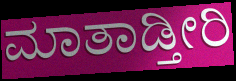
ಮಾತಾಡ್ತೀರಿ